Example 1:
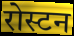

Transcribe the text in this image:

रोस्टन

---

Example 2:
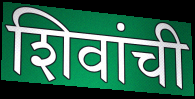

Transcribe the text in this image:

शिवांची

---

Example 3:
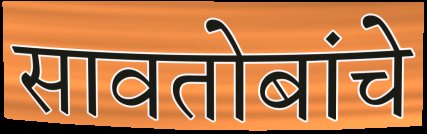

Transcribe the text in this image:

सावतोबांचे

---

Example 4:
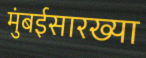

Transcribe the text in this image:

मुंबईसारख्या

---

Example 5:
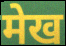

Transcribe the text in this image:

मेख